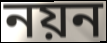
নয়ন